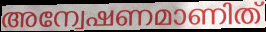
അന്വേഷണമാണിത്